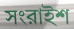
সংরাইশ